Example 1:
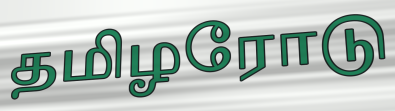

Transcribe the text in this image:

தமிழரோடு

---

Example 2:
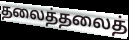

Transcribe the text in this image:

தலைத்தலைத்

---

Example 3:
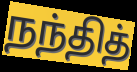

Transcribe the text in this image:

நந்தித்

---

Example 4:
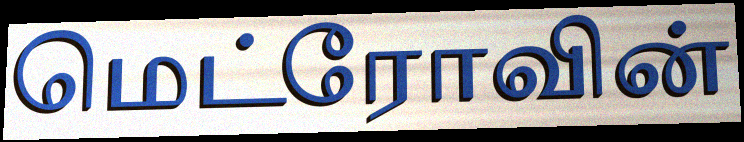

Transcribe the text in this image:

மெட்ரோவின்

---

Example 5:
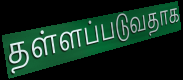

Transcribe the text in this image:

தள்ளப்படுவதாக